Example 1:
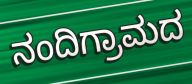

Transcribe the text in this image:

ನಂದಿಗ್ರಾಮದ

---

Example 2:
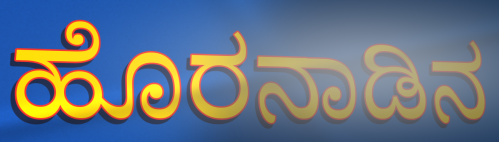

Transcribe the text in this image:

ಹೊರನಾಡಿನ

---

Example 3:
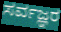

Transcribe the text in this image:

ಸರ್ವಜ್ಞರ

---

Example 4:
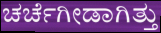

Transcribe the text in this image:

ಚರ್ಚೆಗೀಡಾಗಿತ್ತು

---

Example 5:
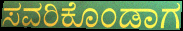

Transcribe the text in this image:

ಸವರಿಕೊಂಡಾಗ